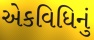
એકવિધિનું